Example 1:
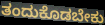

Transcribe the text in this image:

ತಂದುಕೊಡಬೇಕು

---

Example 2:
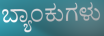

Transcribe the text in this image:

ಬ್ಯಾಂಕುಗಳು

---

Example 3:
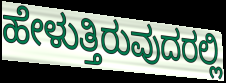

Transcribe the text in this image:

ಹೇಳುತ್ತಿರುವುದರಲ್ಲಿ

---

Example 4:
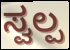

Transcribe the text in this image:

ಸ್ವಲ್ಪ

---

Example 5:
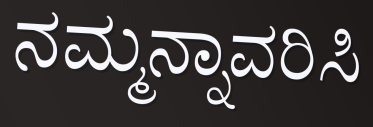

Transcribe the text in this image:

ನಮ್ಮನ್ನಾವರಿಸಿ